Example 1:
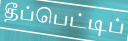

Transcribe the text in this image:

தீப்பெட்டிப்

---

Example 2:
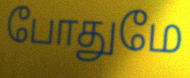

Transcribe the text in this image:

போதுமே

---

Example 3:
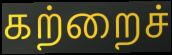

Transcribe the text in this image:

கற்றைச்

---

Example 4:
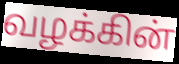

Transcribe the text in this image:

வழக்கின்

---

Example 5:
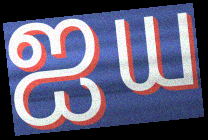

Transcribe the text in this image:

ஐய